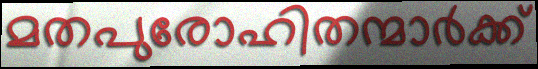
മതപുരോഹിതന്മാർക്ക്